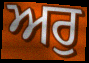
ਅਰੁ